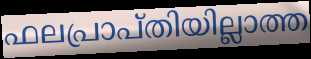
ഫലപ്രാപ്തിയില്ലാത്ത